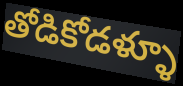
తోడికోడళ్ళూ